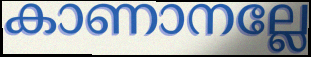
കാണാനല്ലേ